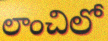
లాంచిలో